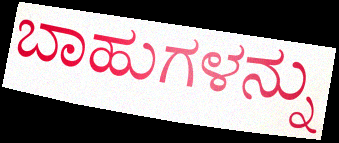
ಬಾಹುಗಳನ್ನು